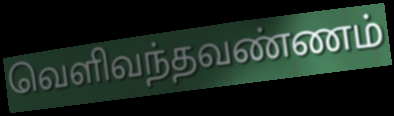
வெளிவந்தவண்ணம்